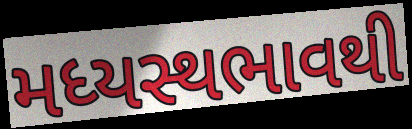
મધ્યસ્થભાવથી